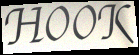
HOOK